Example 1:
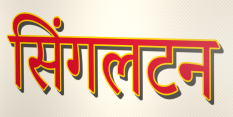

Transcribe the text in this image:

सिंगलटन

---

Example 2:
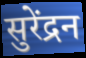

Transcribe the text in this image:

सुरेंद्रन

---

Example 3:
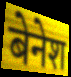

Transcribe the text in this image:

बेनेश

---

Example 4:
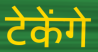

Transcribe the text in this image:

टेकेंगे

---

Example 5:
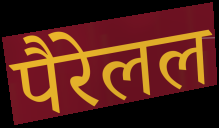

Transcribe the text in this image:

पैरेलल